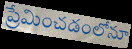
ప్రేమించడంలోనూ